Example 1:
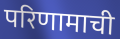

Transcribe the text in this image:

परिणामाची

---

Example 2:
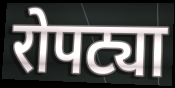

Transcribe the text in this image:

रोपट्या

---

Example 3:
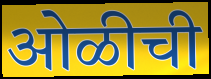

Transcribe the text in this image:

ओळीची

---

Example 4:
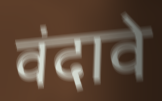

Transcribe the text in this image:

वंदावे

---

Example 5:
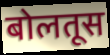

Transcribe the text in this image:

बोलतूस